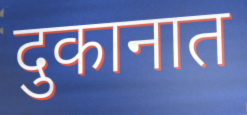
दुकानात